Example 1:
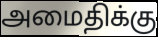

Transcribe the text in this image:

அமைதிக்கு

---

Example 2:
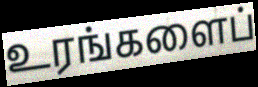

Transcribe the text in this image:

உரங்களைப்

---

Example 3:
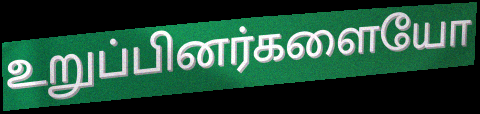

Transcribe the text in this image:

உறுப்பினர்களையோ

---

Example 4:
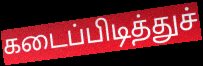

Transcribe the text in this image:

கடைப்பிடித்துச்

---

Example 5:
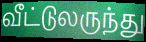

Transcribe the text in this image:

வீட்டுலருந்து